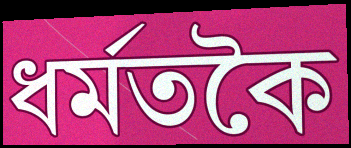
ধৰ্মতকৈ